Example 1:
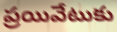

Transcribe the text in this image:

ప్రయివేటుకు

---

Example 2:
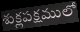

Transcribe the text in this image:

శుక్లపక్షములో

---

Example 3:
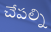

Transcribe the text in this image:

చేపల్ని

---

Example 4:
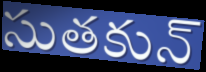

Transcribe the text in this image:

సుతకున్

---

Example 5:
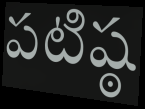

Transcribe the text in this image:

పటిష్ఠ